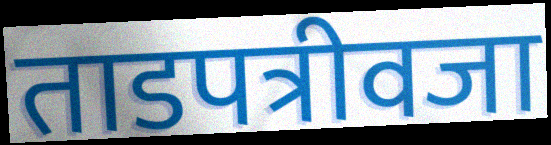
ताडपत्रीवजा